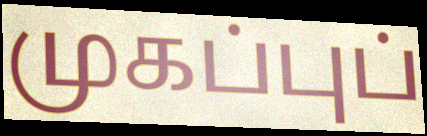
முகப்புப்